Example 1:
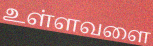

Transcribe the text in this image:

உள்ளவளை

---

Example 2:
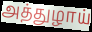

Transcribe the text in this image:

அத்துழாய்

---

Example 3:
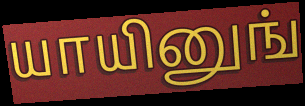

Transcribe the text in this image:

யாயினுங்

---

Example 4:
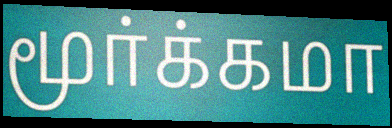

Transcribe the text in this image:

மூர்க்கமா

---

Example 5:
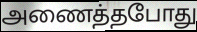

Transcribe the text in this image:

அணைத்தபோது